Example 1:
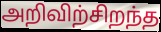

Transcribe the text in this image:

அறிவிற்சிறந்த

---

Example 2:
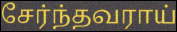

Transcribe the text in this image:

சேர்ந்தவராய்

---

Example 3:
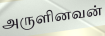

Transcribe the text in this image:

அருளினவன்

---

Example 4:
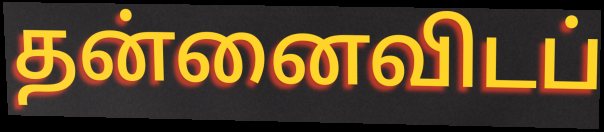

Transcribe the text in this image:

தன்னைவிடப்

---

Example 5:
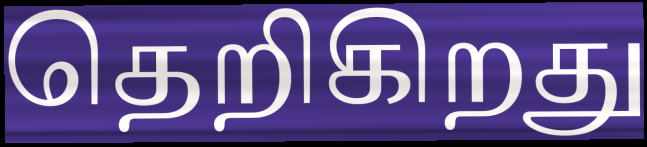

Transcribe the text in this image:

தெறிகிறது